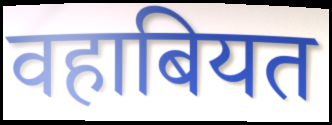
वहाबियत